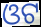
ଓଟ